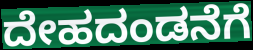
ದೇಹದಂಡನೆಗೆ